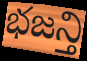
భజన్తి